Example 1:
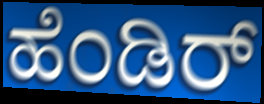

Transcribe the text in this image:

ಹೆಂಡಿರ್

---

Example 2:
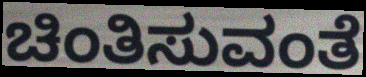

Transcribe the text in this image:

ಚಿಂತಿಸುವಂತೆ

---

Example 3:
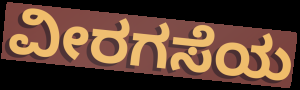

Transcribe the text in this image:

ವೀರಗಸೆಯ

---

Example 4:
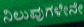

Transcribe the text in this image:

ನಿಲುವುಗಳೇನೇ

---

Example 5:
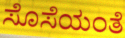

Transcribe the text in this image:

ಸೊಸೆಯಂತೆ